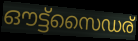
ഔട്ട്സൈഡര്